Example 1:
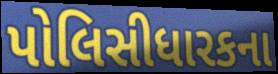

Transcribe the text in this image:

પોલિસીધારકના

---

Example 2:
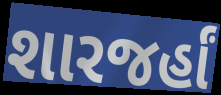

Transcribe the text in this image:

શારજર્હાં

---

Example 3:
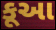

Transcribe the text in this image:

કૂઆ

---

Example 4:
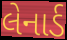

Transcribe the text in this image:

લેનાર્ડ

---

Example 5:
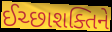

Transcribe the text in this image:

ઈચ્છાશક્તિને